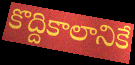
కొద్దికాలానికే